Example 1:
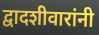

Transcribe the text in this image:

द्वादशीवारांनी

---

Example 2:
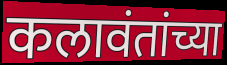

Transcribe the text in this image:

कलावंतांच्या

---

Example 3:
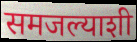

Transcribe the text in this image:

समजल्याशी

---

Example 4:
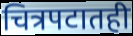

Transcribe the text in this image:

चित्रपटातही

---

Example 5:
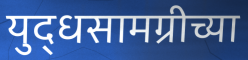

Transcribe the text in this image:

युद्धसामग्रीच्या